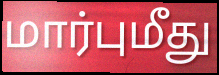
மார்புமீது